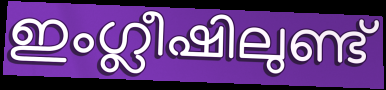
ഇംഗ്ലീഷിലുണ്ട്